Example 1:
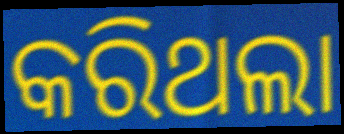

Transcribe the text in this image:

କରିଥଲା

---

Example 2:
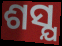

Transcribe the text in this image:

ଶସ୍ଯ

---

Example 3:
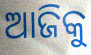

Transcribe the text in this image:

ଆଜିକୁ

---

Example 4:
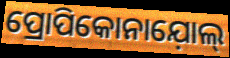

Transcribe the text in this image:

ପ୍ରୋପିକୋନାଯ଼ୋଲ୍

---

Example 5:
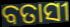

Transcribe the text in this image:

ବତାସୀ